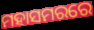
ମହାସମରରେ